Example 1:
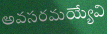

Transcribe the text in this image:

అవసరమయ్యేవి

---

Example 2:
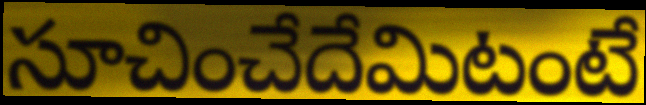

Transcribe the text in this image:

సూచించేదేమిటంటే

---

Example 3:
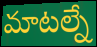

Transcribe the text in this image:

మాటల్నే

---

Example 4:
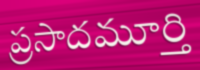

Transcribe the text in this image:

ప్రసాదమూర్తి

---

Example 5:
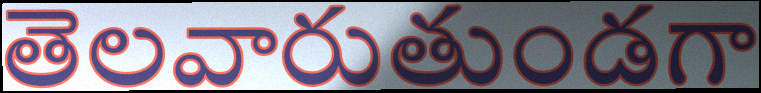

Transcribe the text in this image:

తెలవారుతుండగా